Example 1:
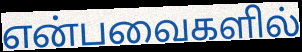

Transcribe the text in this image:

என்பவைகளில்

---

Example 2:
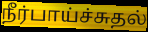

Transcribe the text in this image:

நீர்பாய்ச்சுதல்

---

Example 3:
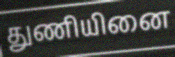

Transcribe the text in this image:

துணியினை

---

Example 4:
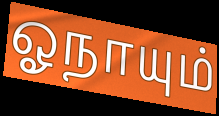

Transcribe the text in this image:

ஓநாயும்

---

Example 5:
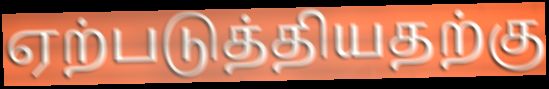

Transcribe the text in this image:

ஏற்படுத்தியதற்கு